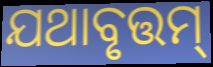
ଯଥାବୃତ୍ତମ୍